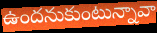
ఉందనుకుంటున్నావా